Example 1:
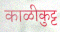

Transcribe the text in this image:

काळीकुट्ट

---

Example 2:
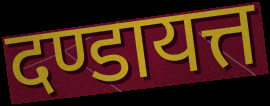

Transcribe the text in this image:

दण्डायत्त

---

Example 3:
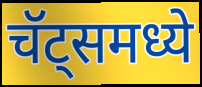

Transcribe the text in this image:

चॅट्समध्ये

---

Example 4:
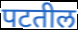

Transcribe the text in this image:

पटतील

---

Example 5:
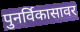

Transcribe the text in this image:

पुनर्विकासावर